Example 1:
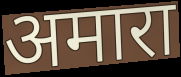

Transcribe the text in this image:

अमारा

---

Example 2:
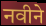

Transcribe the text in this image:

नवीने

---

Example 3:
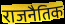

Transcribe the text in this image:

राजनैतिक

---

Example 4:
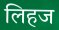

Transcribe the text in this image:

लिहज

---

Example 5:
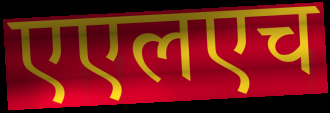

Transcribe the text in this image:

एएलएच